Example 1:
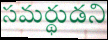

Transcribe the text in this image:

సమర్థుడని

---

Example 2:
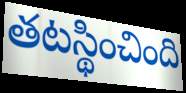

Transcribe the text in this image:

తటస్థించింది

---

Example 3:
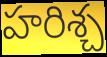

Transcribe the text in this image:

హరిశ్చ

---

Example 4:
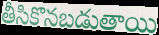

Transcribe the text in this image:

తీసికొనబడుతాయి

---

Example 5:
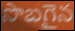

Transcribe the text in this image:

సొబగైన